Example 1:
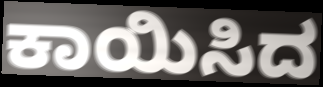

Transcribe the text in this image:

ಕಾಯಿಸಿದ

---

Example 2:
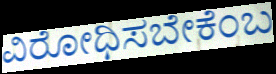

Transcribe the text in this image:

ವಿರೋಧಿಸಬೇಕೆಂಬ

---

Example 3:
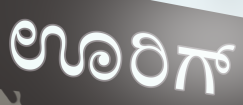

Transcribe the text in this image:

ಊರಿಗ್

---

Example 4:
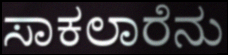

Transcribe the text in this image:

ಸಾಕಲಾರೆನು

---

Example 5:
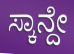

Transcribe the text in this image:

ಸ್ಕಾನ್ದೇ